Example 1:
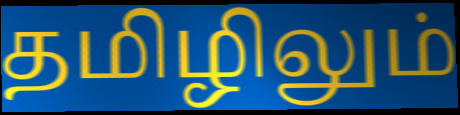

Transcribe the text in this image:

தமிழிலும்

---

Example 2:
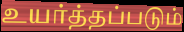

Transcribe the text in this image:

உயர்த்தப்படும்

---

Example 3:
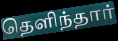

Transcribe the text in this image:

தெளிந்தார்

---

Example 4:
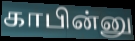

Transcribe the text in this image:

காபின்னு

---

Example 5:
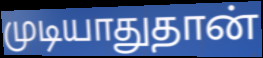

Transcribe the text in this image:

முடியாதுதான்